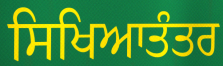
ਸਿਖਿਆਤੰਤਰ